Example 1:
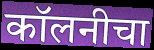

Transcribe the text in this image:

कॉलनीचा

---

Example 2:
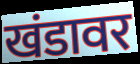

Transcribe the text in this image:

खंडावर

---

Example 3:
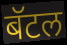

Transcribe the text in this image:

बॅटल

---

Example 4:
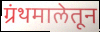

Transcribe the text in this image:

ग्रंथमालेतून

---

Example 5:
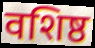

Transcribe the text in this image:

वशिष्ठ